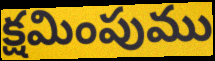
క్షమింపుము